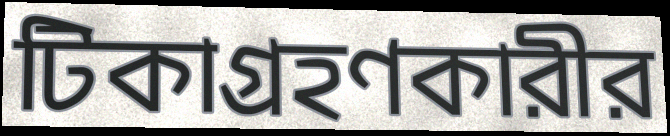
টিকাগ্রহণকারীর